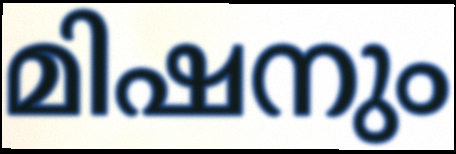
മിഷനും